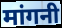
मांगनी